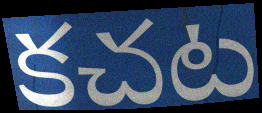
కచట